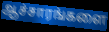
ஆச்சாரங்களை